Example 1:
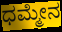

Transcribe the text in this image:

ಧಮ್ಮೇನ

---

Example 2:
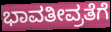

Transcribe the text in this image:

ಭಾವತೀವ್ರತೆಗೆ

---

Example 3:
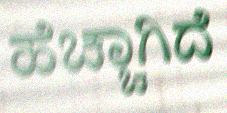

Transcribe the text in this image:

ಹೆಚ್ಚಾಗಿದೆ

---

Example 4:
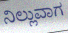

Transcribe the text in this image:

ನಿಲ್ಲುವಾಗ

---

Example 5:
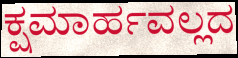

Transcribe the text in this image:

ಕ್ಷಮಾರ್ಹವಲ್ಲದ